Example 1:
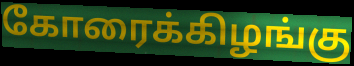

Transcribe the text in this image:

கோரைக்கிழங்கு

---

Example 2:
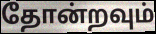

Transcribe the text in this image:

தோன்றவும்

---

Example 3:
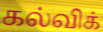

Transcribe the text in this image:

கல்விக்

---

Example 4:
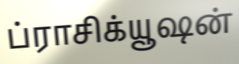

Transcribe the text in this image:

ப்ராசிக்யூஷன்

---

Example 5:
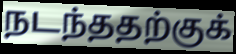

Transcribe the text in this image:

நடந்ததற்குக்